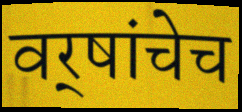
वर्षांचेच